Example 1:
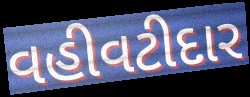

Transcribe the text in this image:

વહીવટીદાર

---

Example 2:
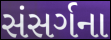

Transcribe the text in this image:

સંસર્ગના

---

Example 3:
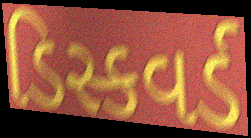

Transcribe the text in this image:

ડિસ્કવર્ડ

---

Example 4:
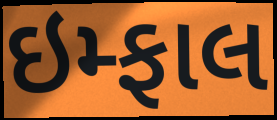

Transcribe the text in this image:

ઇમ્ફાલ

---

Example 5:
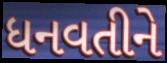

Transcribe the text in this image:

ધનવતીને